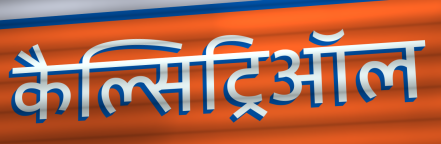
कैल्सिट्रिऑल